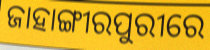
ଜାହାଙ୍ଗୀରପୁରୀରେ